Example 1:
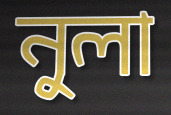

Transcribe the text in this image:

নুলা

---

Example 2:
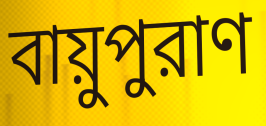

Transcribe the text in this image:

বায়ুপুরাণ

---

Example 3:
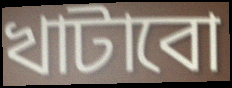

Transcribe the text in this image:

খাটাবো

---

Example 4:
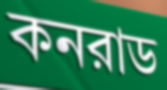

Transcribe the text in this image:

কনরাড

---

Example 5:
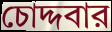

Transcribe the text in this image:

চোদ্দবার